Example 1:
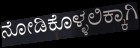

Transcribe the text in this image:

ನೋಡಿಕೊಳ್ಳಲಿಕ್ಕಾಗಿ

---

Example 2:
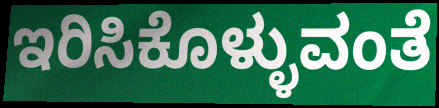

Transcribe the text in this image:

ಇರಿಸಿಕೊಳ್ಳುವಂತೆ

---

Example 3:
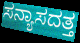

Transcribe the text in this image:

ಸನ್ಯಾಸದತ್ತ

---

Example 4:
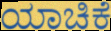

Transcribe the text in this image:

ಯಾಚಿಕೆ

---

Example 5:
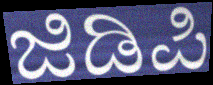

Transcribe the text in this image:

ಜಿಡಿಪಿ